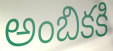
అంబికకి